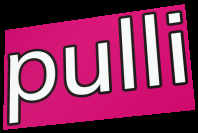
pulli